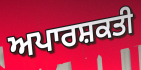
ਅਪਾਰਸ਼ਕਤੀ